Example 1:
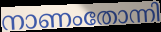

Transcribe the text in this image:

നാണംതോന്നി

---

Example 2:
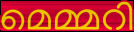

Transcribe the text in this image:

മെമ്മറി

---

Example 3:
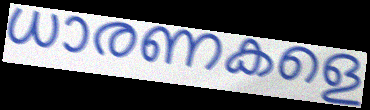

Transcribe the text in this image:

ധാരണകളെ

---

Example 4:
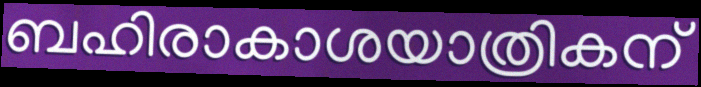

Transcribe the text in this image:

ബഹിരാകാശയാത്രികന്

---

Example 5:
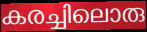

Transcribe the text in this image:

കരച്ചിലൊരു